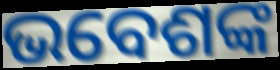
ଭବେଶଙ୍କ